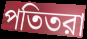
পতিতরা